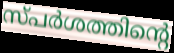
സ്പർശത്തിന്റെ